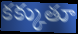
కక్కుతూ